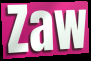
Zaw